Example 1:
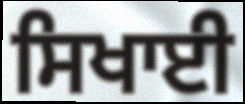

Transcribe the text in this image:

ਸਿਖਾਈ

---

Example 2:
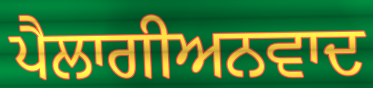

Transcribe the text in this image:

ਪੈਲਾਗੀਅਨਵਾਦ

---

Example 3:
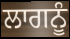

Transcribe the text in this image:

ਲਾਗਨੂੰ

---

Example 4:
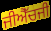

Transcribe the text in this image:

ਜੀਐੱਚਜੀ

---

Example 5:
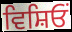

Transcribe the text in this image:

ਵਿਸ਼ਿਓਂ